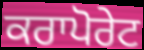
ਕਰਾਪੋਰੇਟ